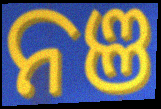
ନଞ